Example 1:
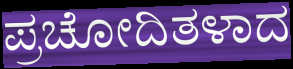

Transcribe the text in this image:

ಪ್ರಚೋದಿತಳಾದ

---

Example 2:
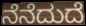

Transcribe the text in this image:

ನೆನೆದುದೆ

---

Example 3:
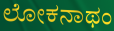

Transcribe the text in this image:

ಲೋಕನಾಥಂ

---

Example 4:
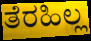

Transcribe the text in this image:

ತೆರಹಿಲ್ಲ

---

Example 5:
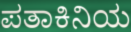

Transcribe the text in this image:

ಪತಾಕಿನಿಯ